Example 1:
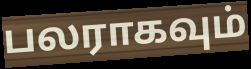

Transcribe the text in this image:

பலராகவும்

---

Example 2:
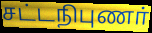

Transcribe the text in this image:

சட்டநிபுணர்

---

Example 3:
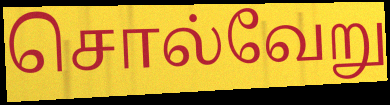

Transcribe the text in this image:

சொல்வேறு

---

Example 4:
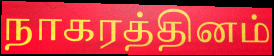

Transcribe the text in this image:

நாகரத்தினம்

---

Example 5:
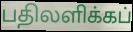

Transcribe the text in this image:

பதிலளிக்கப்